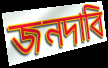
জনদাবি